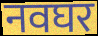
नवघर